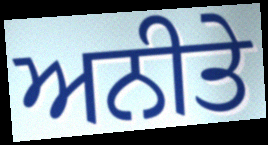
ਅਨੀਤੇ